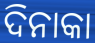
ଦିନାକା